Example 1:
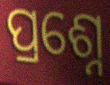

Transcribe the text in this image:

ପ୍ରଶ୍ନେ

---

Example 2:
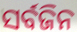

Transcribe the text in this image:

ସର୍ବଜିନ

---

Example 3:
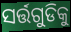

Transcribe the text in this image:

ସର୍ତ୍ତଗୁଡିକୁ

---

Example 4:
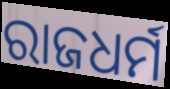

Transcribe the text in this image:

ରାଜଧର୍ମ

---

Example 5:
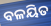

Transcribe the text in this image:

ବଳୟିତ